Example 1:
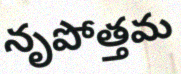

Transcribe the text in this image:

నృపోత్తమ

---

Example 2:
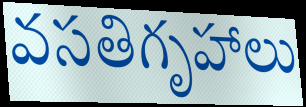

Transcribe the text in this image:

వసతిగృహాలు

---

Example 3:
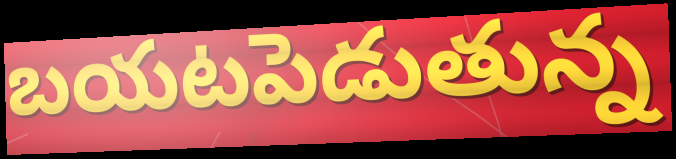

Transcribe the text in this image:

బయటపెడుతున్న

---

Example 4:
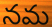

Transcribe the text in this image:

నమ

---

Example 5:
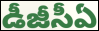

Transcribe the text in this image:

డీజీసీఏ